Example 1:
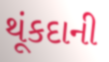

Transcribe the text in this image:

થૂંકદાની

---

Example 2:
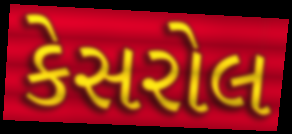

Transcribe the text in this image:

કેસરોલ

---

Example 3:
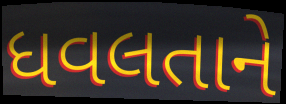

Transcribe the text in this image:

ધવલતાને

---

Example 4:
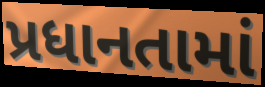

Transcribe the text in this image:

પ્રધાનતામાં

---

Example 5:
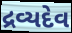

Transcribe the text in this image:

દ્રવ્યદેવ